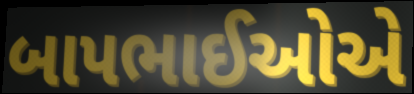
બાપભાઈઓએ